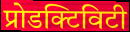
प्रोडक्टिविटी